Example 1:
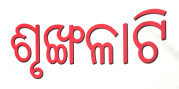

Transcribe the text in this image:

ଶୃଙ୍ଖଳାଟି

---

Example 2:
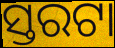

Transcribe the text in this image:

ସ୍ତରଟା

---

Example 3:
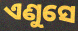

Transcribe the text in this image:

ଏଣୁସେ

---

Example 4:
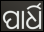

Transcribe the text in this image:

ପାର୍ଧି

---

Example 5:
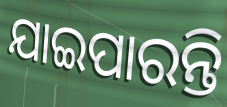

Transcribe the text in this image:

ଯାଇପାରନ୍ତି